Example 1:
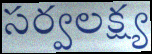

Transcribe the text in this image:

సర్వలక్ష్య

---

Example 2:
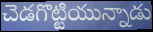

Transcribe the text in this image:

చెడగొట్టియున్నాడు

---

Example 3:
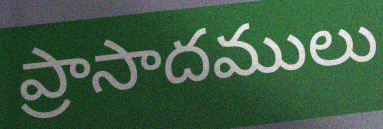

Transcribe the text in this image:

ప్రాసాదములు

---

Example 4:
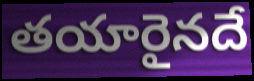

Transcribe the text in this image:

తయారైనదే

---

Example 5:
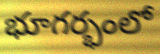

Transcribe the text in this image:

భూగర్భంలో